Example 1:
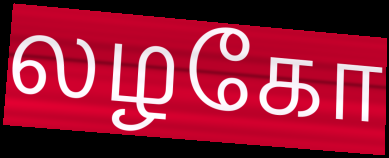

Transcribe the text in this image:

லழகோ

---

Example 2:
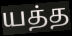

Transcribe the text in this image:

யத்த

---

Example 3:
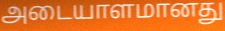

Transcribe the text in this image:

அடையாளமானது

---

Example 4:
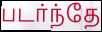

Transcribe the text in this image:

படர்ந்தே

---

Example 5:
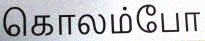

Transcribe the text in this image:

கொலம்போ